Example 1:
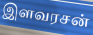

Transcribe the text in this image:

இளவரசன்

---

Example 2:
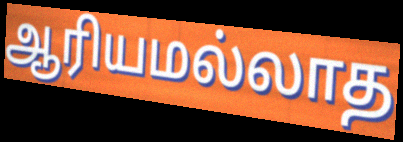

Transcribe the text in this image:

ஆரியமல்லாத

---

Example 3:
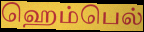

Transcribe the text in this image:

ஹெம்பெல்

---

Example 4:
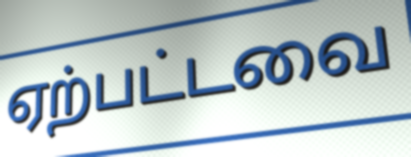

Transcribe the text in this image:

ஏற்பட்டவை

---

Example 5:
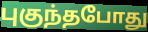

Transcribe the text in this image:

புகுந்தபோது